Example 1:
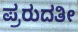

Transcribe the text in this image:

ಪ್ರರುದತೀ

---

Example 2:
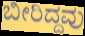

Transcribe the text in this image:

ಬೀರಿದ್ದವು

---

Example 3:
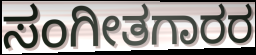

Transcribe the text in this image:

ಸಂಗೀತಗಾರರ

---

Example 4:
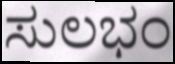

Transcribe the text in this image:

ಸುಲಭಂ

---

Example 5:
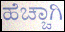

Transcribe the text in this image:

ಹೆಚ್ಚಾಗಿ